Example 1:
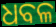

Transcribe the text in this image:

ଧବଳ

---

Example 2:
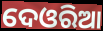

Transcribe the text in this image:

ଦେଓରିଆ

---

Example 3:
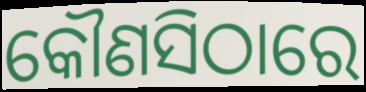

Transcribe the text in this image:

କୌଣସିଠାରେ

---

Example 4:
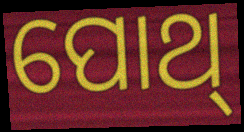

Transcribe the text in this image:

ପୋଥ୍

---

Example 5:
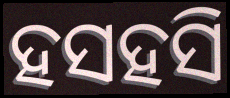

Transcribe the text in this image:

ହସହସି